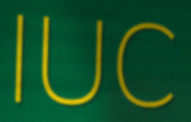
IUC